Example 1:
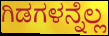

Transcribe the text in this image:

ಗಿಡಗಳನ್ನೆಲ್ಲ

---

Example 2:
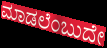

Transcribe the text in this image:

ಮಾಡಲೆಂಬುದೇ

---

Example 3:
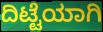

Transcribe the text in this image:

ದಿಟ್ಟೆಯಾಗಿ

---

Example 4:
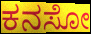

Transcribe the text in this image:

ಕನಸೋ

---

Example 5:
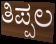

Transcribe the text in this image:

ತಿಪ್ಪಲ